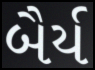
બૈર્ય